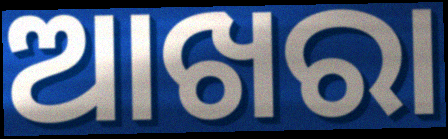
ଆଖରା